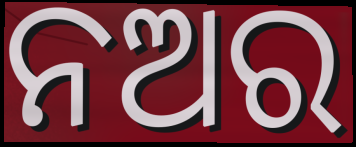
ନଅର